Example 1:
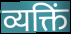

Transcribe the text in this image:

व्यक्तिं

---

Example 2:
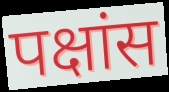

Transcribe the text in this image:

पक्षांस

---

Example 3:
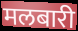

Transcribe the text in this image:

मलबारी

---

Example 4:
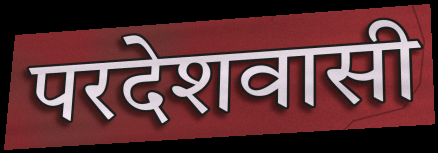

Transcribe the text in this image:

परदेशवासी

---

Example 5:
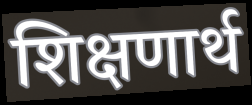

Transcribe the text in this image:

शिक्षणार्थ